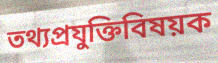
তথ্যপ্রযুক্তিবিষয়ক